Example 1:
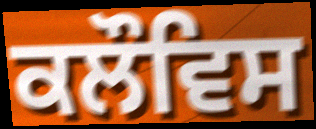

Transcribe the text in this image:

ਕਲੌਵਿਸ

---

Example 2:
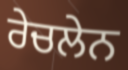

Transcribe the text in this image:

ਰੇਚਲੇਨ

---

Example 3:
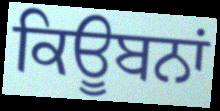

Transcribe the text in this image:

ਕਿਊਬਨਾਂ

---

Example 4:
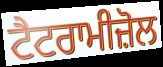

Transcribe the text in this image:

ਟੈਟਰਾਮੀਜ਼ੋਲ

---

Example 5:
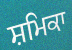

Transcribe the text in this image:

ਸ਼ਮਿਕਾ